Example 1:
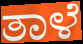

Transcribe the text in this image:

ತಾಳೆ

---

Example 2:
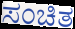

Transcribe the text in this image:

ಸಂಚಿತ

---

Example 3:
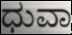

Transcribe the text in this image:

ಧುವಾ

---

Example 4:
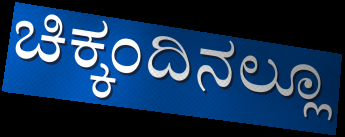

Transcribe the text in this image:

ಚಿಕ್ಕಂದಿನಲ್ಲೂ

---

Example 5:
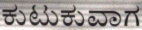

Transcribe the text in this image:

ಕುಟುಕುವಾಗ